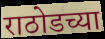
राठोडच्या